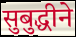
सुबुद्धीने